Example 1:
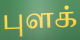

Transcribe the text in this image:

புளக்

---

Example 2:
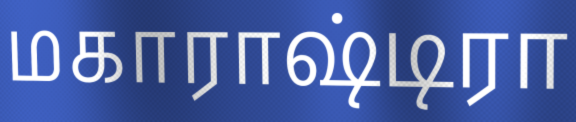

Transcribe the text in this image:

மகாராஷ்டிரா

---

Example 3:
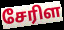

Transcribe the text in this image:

சேரிள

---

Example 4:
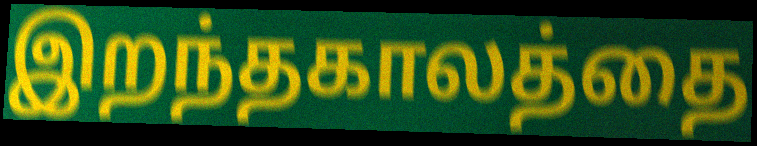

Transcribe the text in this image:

இறந்தகாலத்தை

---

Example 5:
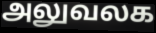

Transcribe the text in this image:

அலுவலக